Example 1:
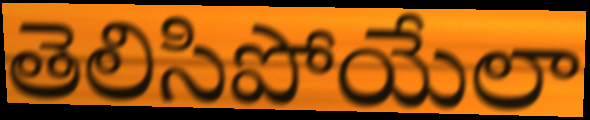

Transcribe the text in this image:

తెలిసిపోయేలా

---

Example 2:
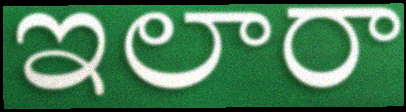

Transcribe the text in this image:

ఇలారా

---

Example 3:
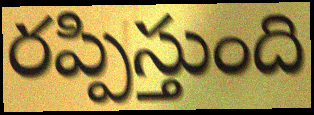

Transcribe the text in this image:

రప్పిస్తుంది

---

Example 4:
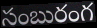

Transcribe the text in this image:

సంబురంగ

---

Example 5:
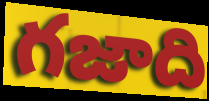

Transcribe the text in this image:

గజాది